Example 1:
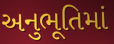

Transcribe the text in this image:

અનુભૂતિમાં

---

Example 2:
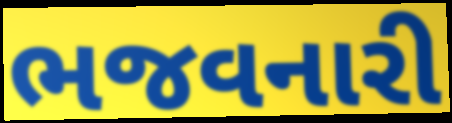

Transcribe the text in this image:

ભજવનારી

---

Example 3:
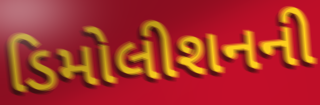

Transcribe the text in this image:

ડિમોલીશનની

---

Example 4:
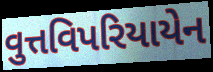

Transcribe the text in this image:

વુત્તવિપરિયાયેન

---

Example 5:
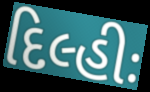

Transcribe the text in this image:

દિલ્હીઃ